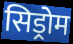
सिड्रोम